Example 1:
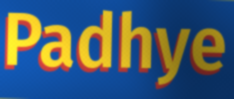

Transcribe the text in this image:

Padhye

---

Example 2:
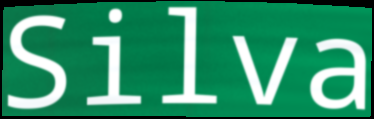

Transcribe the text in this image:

Silva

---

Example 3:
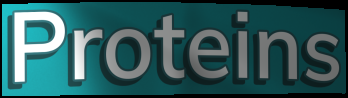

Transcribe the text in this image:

Proteins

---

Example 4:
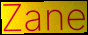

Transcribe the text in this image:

Zane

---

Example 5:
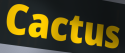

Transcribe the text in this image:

Cactus